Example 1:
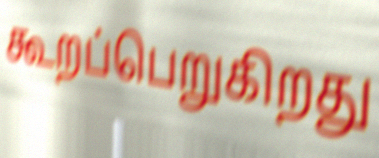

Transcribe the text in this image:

கூறப்பெறுகிறது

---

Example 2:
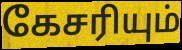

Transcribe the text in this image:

கேசரியும்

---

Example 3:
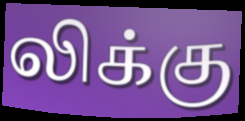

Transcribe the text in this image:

லிக்கு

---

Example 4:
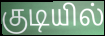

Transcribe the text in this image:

குடியில்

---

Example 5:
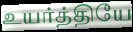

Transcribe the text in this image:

உயர்த்தியே